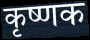
कृष्णक